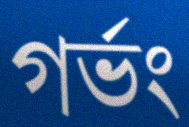
গর্ভং